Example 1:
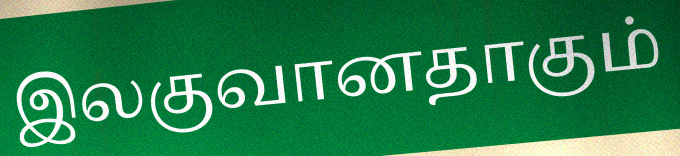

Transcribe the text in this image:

இலகுவானதாகும்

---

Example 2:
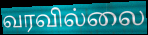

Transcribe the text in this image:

வரவில்லை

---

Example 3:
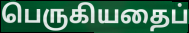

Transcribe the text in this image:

பெருகியதைப்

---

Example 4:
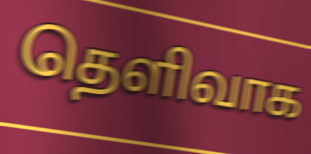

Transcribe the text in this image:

தெளிவாக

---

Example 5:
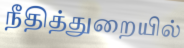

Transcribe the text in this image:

நீதித்துறையில்